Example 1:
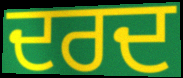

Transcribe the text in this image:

ਦਰਦ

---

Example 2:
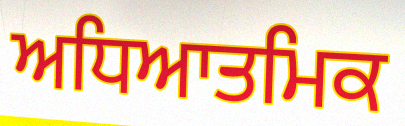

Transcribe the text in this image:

ਅਧਿਆਤਮਿਕ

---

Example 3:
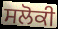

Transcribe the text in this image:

ਸਲੋਕੀ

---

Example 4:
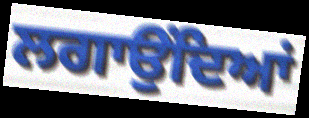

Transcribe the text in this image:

ਲਗਾਉਂਦਿਆਂ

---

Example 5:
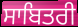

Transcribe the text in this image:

ਸਾਬਿਤਰੀ